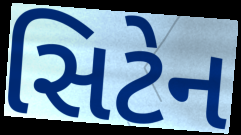
સિટેન